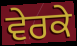
ਵੇਰਕੇ